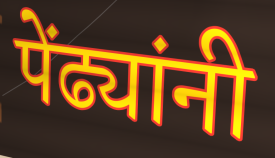
पेंढ्यांनी